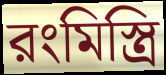
রংমিস্ত্রি